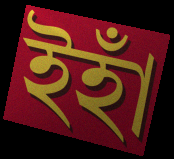
ইহাঁ